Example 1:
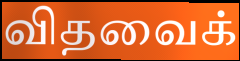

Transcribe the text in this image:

விதவைக்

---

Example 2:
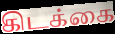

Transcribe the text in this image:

கிடக்கை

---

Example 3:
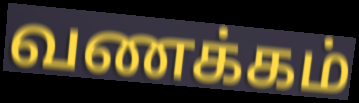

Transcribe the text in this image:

வணக்கம்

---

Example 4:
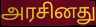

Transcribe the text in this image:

அரசினது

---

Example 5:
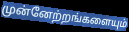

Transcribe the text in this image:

முன்னேற்றங்களையும்